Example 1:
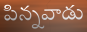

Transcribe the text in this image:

పిన్నవాడు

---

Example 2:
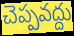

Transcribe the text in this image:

చెప్పవద్దు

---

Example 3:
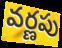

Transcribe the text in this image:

వర్ణపు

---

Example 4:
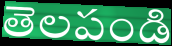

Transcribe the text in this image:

తెలపండి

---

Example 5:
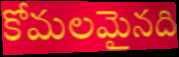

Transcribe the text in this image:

కోమలమైనది